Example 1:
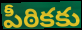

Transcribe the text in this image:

పీఠికకు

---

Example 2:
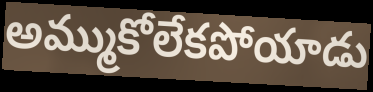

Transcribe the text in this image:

అమ్ముకోలేకపోయాడు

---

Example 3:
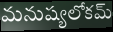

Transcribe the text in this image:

మనుష్యలోకమ్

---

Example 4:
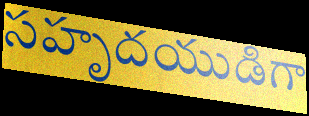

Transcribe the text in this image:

సహృదయుడిగా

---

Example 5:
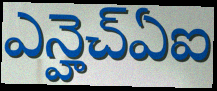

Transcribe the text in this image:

ఎన్హెచ్ఏఐ